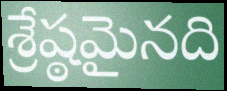
శ్రేష్ఠమైనది